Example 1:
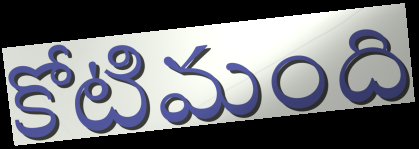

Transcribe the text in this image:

కోటిమంది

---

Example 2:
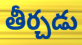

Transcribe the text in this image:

తీర్చడు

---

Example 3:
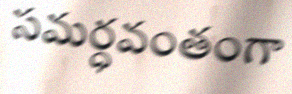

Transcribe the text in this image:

సమర్ధవంతంగా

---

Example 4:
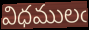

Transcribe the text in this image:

విధములఁ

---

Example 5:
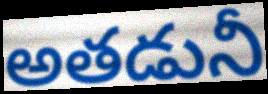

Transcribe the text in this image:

అతడునీ